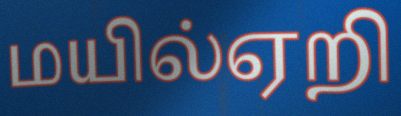
மயில்ஏறி